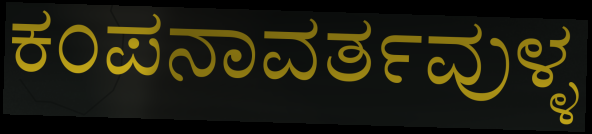
ಕಂಪನಾವರ್ತವುಳ್ಳ